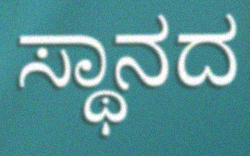
ಸ್ಥಾನದ